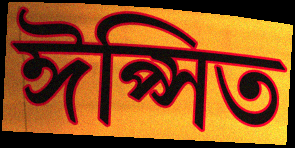
ঈপ্সিত